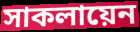
সাকলায়েন